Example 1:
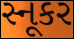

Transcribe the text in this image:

સ્નૂકર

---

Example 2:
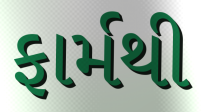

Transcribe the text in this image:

ફાર્મથી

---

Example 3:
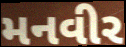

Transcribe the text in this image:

મનવીર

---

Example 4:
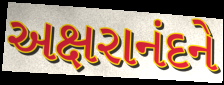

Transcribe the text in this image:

અક્ષરાનંદને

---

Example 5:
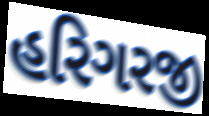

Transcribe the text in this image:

હરિગરજી